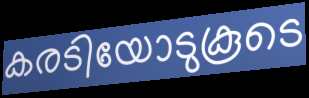
കരടിയോടുകൂടെ